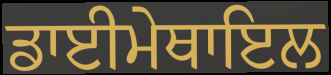
ਡਾਈਮੇਥਾਇਲ